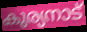
കുര്യനാട്